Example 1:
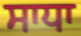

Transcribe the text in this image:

ਸਾਧਾ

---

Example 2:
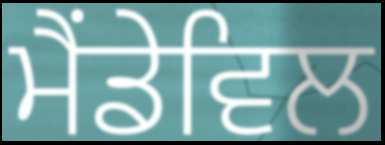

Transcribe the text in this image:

ਮੈਂਡੇਵਿਲ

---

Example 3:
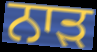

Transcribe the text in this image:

ਨਾੜ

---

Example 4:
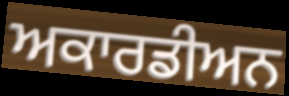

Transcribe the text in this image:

ਅਕਾਰਡੀਅਨ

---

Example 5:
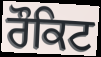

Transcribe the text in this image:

ਰੌਕਿਟ